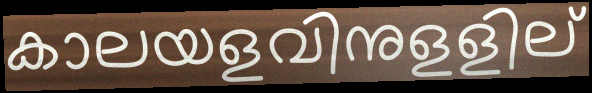
കാലയളവിനുളളില്